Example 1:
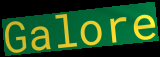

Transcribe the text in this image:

Galore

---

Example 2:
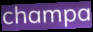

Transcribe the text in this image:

champa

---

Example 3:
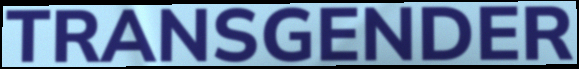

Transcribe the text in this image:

TRANSGENDER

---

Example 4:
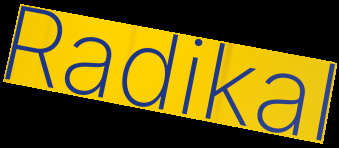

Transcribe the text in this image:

Radikal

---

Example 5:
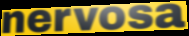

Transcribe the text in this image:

nervosa